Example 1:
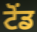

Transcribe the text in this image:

ਟੋਂਡ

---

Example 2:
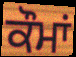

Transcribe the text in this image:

ਕੌਮਾਂ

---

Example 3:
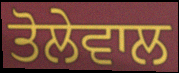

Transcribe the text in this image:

ਤੋਲੇਵਾਲ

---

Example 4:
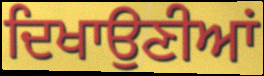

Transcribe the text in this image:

ਦਿਖਾਉਣੀਆਂ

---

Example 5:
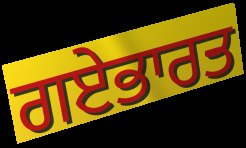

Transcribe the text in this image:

ਗਏਭਾਰਤ